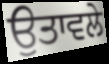
ਉਤਾਵਲੇ